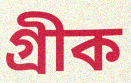
গ্রীক